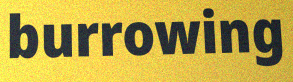
burrowing